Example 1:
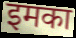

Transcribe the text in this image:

इमका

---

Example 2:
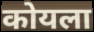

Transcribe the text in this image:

कोयला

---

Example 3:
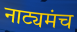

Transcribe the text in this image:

नाट्यमंच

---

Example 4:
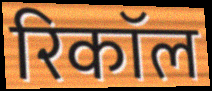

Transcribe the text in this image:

रिकॉल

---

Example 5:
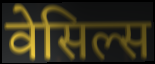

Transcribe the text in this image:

वेसिल्स